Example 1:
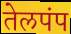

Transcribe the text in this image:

तेलपंप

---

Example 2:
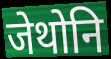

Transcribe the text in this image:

जेथोनि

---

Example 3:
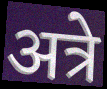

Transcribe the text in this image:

अत्रे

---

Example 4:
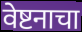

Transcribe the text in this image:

वेष्टनाचा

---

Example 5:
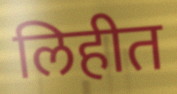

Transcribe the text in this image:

लिहीत